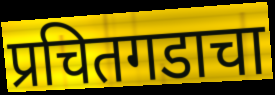
प्रचितगडाचा